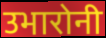
उभारोनी